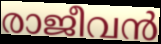
രാജീവൻ